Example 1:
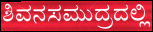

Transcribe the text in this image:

ಶಿವನಸಮುದ್ರದಲ್ಲಿ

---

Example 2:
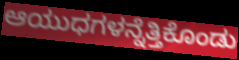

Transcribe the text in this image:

ಆಯುಧಗಳನ್ನೆತ್ತಿಕೊಂಡು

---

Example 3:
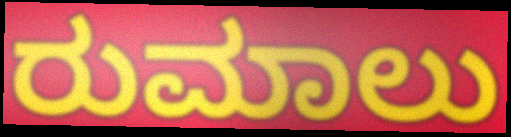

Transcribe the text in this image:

ರುಮಾಲು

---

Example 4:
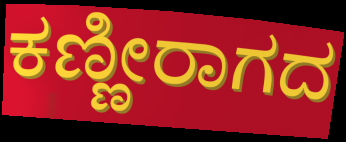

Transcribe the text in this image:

ಕಣ್ಣೀರಾಗದ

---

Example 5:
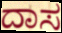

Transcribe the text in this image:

ದಾಸ